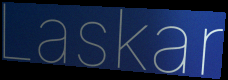
Laskar